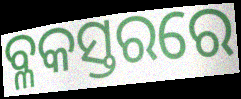
ବ୍ଳକସ୍ତରରେ